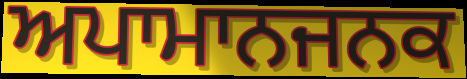
ਅਪਾਮਾਨਜਨਕ